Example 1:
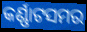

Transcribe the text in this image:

କର୍ଣ୍ଣାଟସମର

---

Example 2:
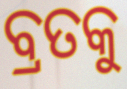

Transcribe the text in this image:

ବ୍ରତକୁ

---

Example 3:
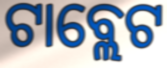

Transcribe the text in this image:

ଟାବ୍ଲେଟ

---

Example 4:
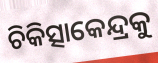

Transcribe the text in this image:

ଚିକିତ୍ସାକେନ୍ଦ୍ରକୁ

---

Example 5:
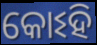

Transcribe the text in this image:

କୋଽହି